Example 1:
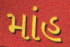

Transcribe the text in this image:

માંહ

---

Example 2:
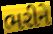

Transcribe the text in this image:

ભરીને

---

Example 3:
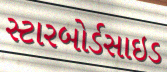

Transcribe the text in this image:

સ્ટારબોર્ડસાઇડ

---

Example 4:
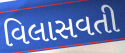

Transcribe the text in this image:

વિલાસવતી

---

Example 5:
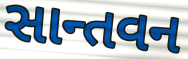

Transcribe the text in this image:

સાન્તવન